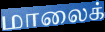
மாலைக்